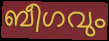
ബീഗവും